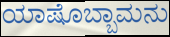
ಯಾಷೊಬ್ಬಾಮನು